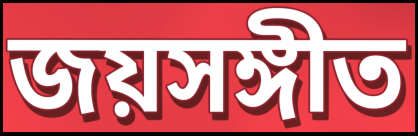
জয়সঙ্গীত